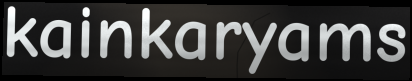
kainkaryams